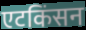
एटकिंसन